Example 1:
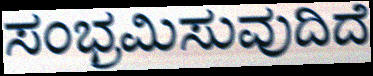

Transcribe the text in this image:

ಸಂಭ್ರಮಿಸುವುದಿದೆ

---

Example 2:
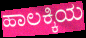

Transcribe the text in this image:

ಹಾಲಕ್ಕಿಯ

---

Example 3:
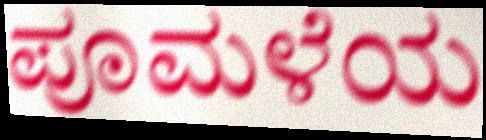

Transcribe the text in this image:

ಪೂಮಳೆಯ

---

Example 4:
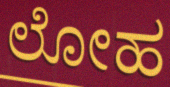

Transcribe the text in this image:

ಲೋಹ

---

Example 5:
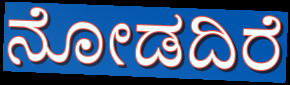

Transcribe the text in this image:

ನೋಡದಿರೆ